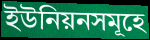
ইউনিয়নসমূহে